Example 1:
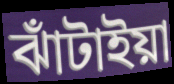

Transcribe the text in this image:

ঝাঁটাইয়া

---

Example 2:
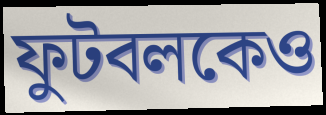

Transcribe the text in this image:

ফুটবলকেও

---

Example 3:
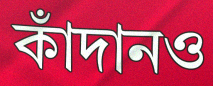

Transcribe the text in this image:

কাঁদানও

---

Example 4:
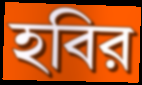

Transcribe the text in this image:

হবির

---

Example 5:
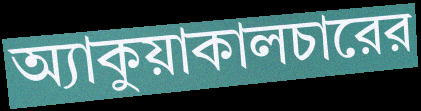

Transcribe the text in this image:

অ্যাকুয়াকালচারের